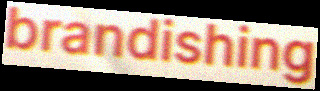
brandishing